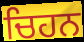
ਚਿਹਨ